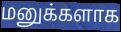
மனுக்களாக